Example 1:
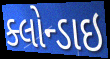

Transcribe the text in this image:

ક્લોન્ડાઇ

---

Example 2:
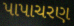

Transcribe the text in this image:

પાપાચરણ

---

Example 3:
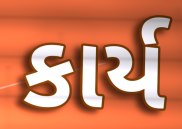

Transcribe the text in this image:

કાર્ય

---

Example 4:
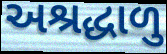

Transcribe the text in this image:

અશ્રદ્ધાળુ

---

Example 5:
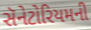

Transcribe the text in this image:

સૅનેટોરિયમની